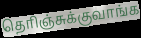
தெரிஞ்சுக்குவாங்க